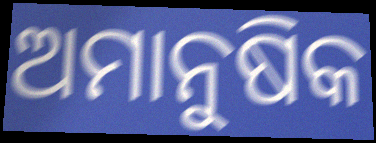
ଅମାନୁଷିକ